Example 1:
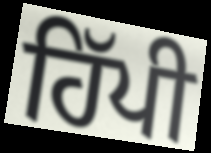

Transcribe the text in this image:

ਹਿੱਪੀ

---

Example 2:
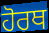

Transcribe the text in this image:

ਹੋਰਥ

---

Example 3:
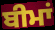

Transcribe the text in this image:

ਬੀਮਾਂ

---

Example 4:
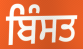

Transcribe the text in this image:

ਬਿੰਸਤ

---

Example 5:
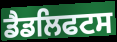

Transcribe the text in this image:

ਡੈਡਲਿਫਟਸ